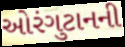
ઓરંગુટાનની